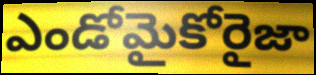
ఎండోమైకోరైజా